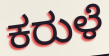
ಕರುಳೆ